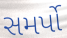
સમર્પો